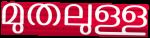
മുതലുള്ള